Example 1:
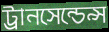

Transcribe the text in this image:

ট্রানসেন্ডেন্স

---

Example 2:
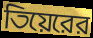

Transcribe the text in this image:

তিয়েরের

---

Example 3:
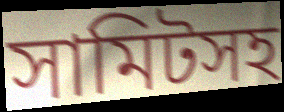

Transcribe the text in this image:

সামিটসহ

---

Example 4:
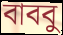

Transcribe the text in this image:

বাববু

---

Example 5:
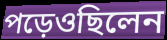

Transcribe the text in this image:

পড়েওছিলেন